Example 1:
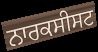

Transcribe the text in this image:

ਨਾਰਕਸੀਸਟ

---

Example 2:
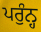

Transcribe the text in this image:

ਪਰੁੰਨ੍ਹ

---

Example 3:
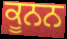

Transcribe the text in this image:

ਕੂਨਨ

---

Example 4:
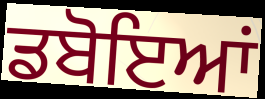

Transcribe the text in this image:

ਡਬੋਇਆਂ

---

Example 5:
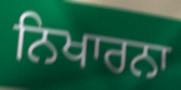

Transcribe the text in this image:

ਨਿਖਾਰਨਾ